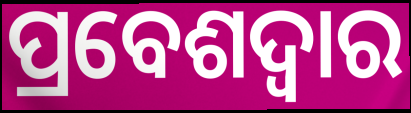
ପ୍ରବେଶଦ୍ଵାର